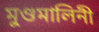
মুণ্ডমালিনী